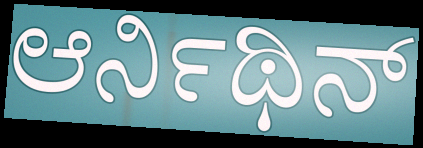
ಆರ್ನಿಥಿನ್